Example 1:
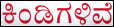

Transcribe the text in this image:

ಕಿಂಡಿಗಳಿವೆ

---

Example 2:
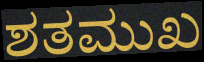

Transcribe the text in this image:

ಶತಮುಖ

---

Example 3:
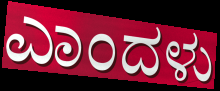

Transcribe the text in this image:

ಎಾಂದಳು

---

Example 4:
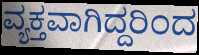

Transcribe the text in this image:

ವ್ಯಕ್ತವಾಗಿದ್ದರಿಂದ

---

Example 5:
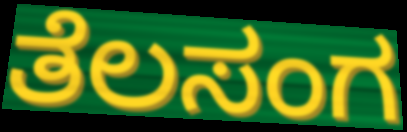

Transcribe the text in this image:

ತೆಲಸಂಗ